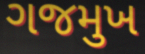
ગજમુખ